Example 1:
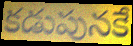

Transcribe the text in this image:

కడుపునకే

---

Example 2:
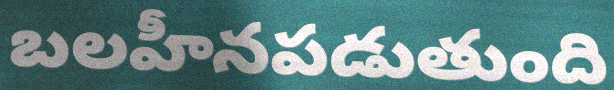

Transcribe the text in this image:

బలహీనపడుతుంది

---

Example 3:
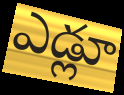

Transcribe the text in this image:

ఎడ్లూ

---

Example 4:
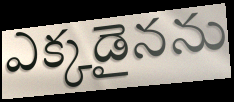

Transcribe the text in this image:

ఎక్కడైనను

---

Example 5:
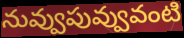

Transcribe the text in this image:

నువ్వుపువ్వువంటి